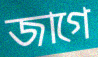
জাগে